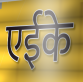
एईके